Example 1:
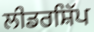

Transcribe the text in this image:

ਲੀਡਰਸ਼ਿੱਪ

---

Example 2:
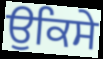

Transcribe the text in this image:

ਉਕਿਸੇ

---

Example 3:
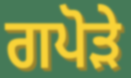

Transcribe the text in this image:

ਗਪੋੜੇ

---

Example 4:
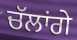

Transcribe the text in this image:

ਚੱਲਾਂਗੇ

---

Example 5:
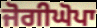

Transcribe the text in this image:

ਜੋਗੀਘੋਪਾ